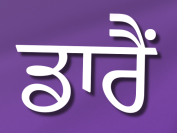
ਡਾਰੈਂ